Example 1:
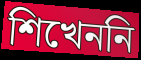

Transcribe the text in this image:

শিখেননি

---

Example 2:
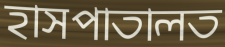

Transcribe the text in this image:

হাসপাতালত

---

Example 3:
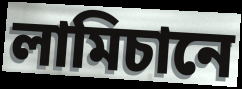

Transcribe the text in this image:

লামিচানে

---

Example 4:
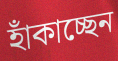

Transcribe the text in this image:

হাঁকাচ্ছেন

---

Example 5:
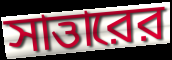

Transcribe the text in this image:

সাত্তারের